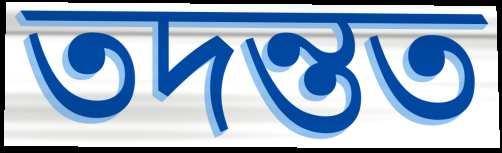
তদন্তত